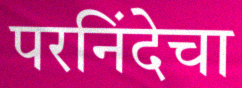
परनिंदेचा